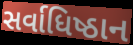
સર્વાધિષ્ઠાન